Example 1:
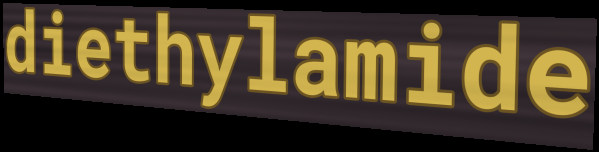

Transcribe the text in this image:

diethylamide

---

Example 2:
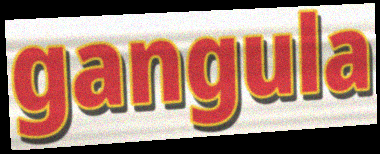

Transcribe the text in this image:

gangula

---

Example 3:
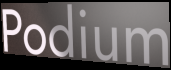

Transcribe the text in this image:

Podium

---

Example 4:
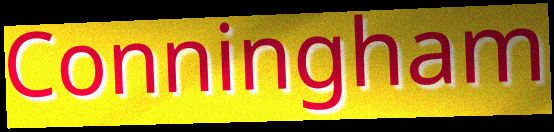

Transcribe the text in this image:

Conningham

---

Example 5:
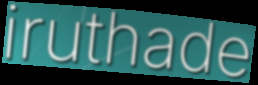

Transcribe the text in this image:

iruthade